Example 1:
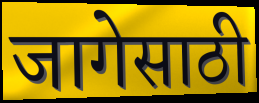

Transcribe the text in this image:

जागेसाठी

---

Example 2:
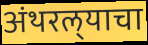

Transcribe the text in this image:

अंथरल्याचा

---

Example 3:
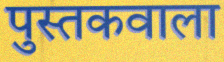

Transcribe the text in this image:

पुस्तकवाला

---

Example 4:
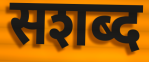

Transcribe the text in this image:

सशब्द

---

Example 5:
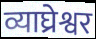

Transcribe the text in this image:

व्याघ्रेश्वर